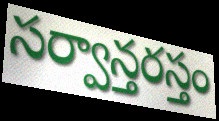
సర్వాన్తరస్తం